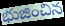
భుజించిన